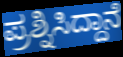
ಪ್ರಶ್ನಿಸಿದ್ದಾನೆ